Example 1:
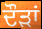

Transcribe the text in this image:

ਦੌੜਾਂ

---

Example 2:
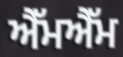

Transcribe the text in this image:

ਐੱਮਐੱਮ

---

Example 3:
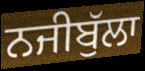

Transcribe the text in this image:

ਨਜੀਬੁੱਲਾ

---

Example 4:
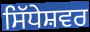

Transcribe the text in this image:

ਸਿੱਧੇਸ਼ਵਰ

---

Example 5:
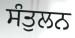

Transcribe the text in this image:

ਸੰਤੁਲਨ